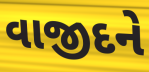
વાજીદને